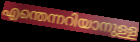
എന്തെന്നറിയാനുള്ള